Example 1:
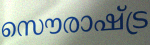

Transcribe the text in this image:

സൌരാഷ്ട്ര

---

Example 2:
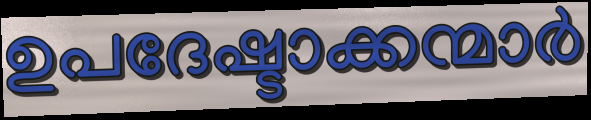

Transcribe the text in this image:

ഉപദേഷ്ടാക്കന്മാർ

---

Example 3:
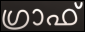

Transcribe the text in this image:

ഗ്രാഫ്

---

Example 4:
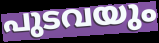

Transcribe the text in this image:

പുടവയും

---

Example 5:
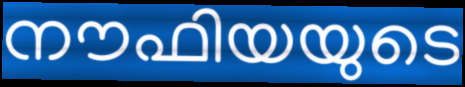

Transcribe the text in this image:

നൗഫിയയുടെ